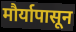
मौर्यापासून